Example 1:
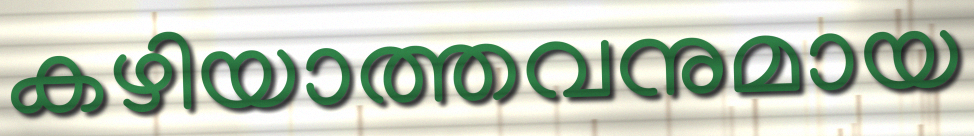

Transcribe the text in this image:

കഴിയാത്തവനുമായ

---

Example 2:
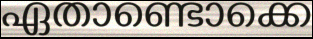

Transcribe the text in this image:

ഏതാണ്ടൊക്കെ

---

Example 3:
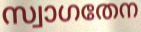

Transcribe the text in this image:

സ്വാഗതേന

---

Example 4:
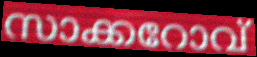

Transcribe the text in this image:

സാക്കറോവ്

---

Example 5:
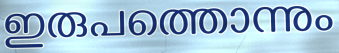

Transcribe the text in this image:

ഇരുപത്തൊന്നും